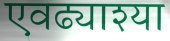
एवढ्याश्या